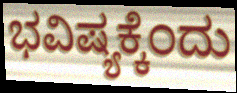
ಭವಿಷ್ಯಕ್ಕೆಂದು